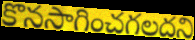
కొనసాగించగలదని